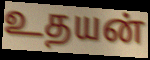
உதயன்